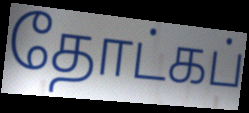
தோட்கப்